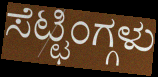
ಸೆಟ್ಟಿಂಗ್ಗಳು